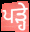
ਪਡ਼੍ਹੇ